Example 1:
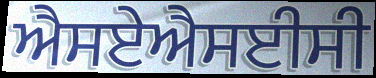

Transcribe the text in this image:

ਐਸਏਐਸਈਸੀ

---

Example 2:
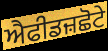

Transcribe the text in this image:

ਐਫੀਡਜ਼ਛੋਟੇ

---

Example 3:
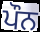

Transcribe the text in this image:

ਪੌਨ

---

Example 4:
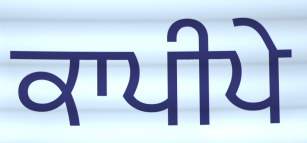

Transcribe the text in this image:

ਕਾਪੀਪੇ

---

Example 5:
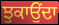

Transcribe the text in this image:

ਝੁਕਾਉਂਦਾ